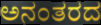
ಅನಂತರದ